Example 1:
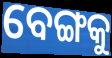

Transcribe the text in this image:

ବେଙ୍ଗକୁ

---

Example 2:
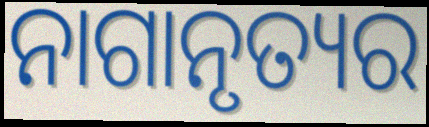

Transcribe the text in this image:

ନାଗାନୃତ୍ୟର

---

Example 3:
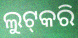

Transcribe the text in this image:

ଲୁଟ୍‍କରି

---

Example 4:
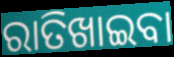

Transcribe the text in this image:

ରାତିଖାଇବା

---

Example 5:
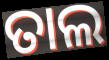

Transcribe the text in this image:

ତାଲ